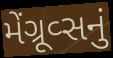
મેંગ્રૂવ્સનું